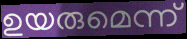
ഉയരുമെന്ന്